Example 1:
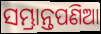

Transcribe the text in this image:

ସମ୍ଭ୍ରାନ୍ତପଣିଆ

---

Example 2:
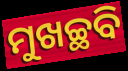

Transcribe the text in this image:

ମୁଖଚ୍ଛବି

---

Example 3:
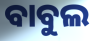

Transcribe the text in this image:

ବାବୁଲ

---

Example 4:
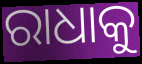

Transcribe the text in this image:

ରାଧାକୁ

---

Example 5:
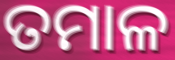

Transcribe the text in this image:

ତମାଳ